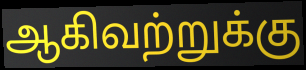
ஆகிவற்றுக்கு